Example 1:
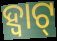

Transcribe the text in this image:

ହ୍ବାଟ୍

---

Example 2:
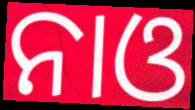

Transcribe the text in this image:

ନାଓ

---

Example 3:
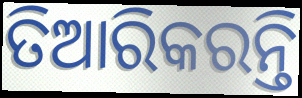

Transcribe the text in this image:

ତିଆରିକରନ୍ତି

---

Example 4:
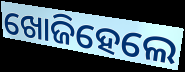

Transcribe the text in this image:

ଖୋଜିହେଲେ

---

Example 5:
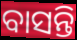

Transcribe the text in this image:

ବାସନ୍ତି